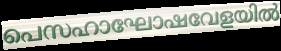
പെസഹാഘോഷവേളയിൽ